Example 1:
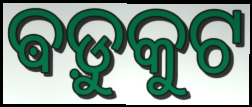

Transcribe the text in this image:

ଵଡ଼ୁକୁଟ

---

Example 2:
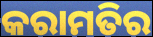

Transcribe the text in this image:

କରାମତିର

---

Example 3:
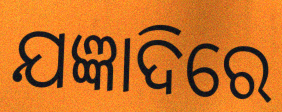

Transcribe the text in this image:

ଯଜ୍ଞାଦିରେ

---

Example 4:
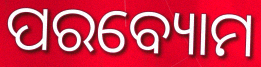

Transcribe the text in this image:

ପରବ୍ୟୋମ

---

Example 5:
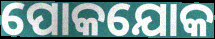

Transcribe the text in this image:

ପୋକଯୋକ